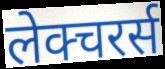
लेक्चरर्स